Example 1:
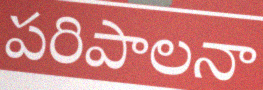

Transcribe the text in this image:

పరిపాలనా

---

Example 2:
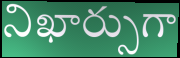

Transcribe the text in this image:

నిఖార్సుగా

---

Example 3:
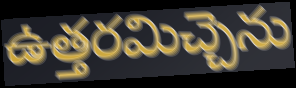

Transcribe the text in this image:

ఉత్తరమిచ్చెను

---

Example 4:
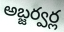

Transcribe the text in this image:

అబ్జర్వర్ల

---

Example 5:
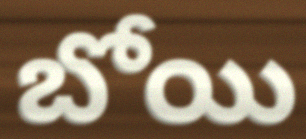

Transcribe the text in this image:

బోయి